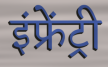
इंफ्रेंट्री